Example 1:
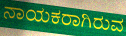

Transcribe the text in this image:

ನಾಯಕರಾಗಿರುವ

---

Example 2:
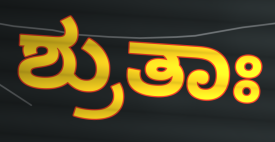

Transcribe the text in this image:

ಶ್ರುತಾಃ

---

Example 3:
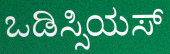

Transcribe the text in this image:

ಒಡಿಸ್ಸಿಯಸ್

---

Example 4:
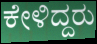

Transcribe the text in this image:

ಕೇಳಿದ್ದರು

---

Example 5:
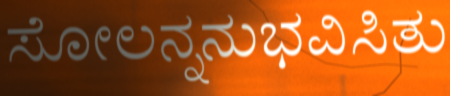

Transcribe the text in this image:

ಸೋಲನ್ನನುಭವಿಸಿತು